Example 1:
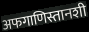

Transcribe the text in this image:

अफगाणिस्तानशी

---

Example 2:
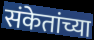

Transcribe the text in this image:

संकेतांच्या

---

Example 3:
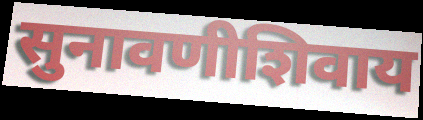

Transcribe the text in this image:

सुनावणीशिवाय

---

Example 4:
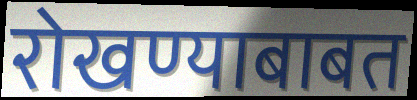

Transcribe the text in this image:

रोखण्याबाबत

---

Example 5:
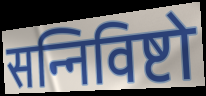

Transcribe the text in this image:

सन्निविष्टो